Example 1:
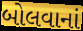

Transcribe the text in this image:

બોલવાનાં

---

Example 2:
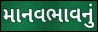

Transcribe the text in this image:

માનવભાવનું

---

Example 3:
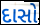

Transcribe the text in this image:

દાસો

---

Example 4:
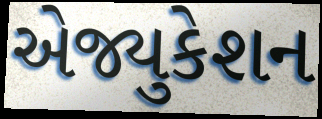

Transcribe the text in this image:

એજ્યુકેશન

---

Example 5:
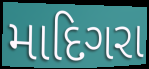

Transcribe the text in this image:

માદિગરા